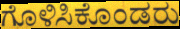
ಗೊಳಿಸಿಕೊಂಡರು